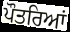
ਪੌਤਰਿਆਂ